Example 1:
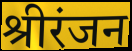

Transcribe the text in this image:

श्रीरंजन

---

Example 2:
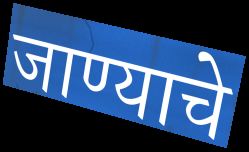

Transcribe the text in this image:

जाण्याचे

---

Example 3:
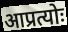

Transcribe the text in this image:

आप्रत्योः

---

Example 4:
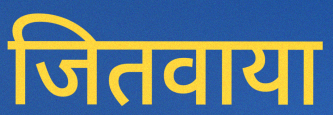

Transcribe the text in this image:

जितवाया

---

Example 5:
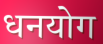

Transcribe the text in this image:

धनयोग